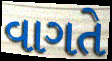
વાગતે